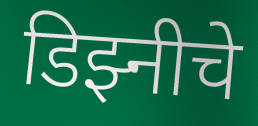
डिझ्नीचे